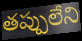
తప్పులేని